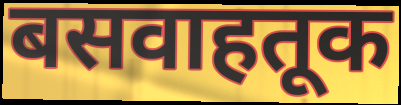
बसवाहतूक